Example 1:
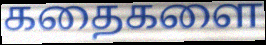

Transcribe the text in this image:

கதைகளை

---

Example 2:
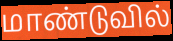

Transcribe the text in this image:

மாண்டுவில்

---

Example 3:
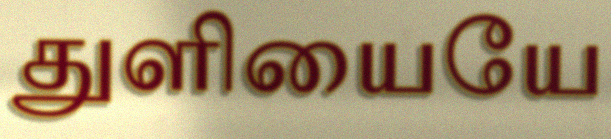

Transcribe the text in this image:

துளியையே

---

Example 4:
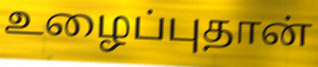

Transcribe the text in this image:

உழைப்புதான்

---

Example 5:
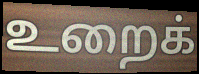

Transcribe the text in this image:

உறைக்